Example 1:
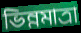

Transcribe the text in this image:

ভিন্নমাত্রা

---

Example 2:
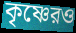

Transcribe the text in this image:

কৃষ্ণেরও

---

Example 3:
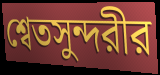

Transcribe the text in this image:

শ্বেতসুন্দরীর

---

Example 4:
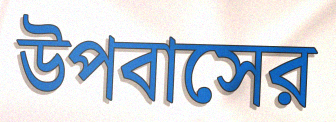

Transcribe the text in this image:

উপবাসের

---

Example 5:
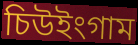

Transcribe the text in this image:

চিউইংগাম